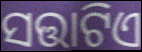
ସତ୍ତାଟିଏ